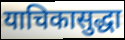
याचिकासुद्धा